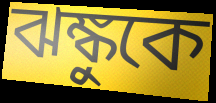
ঝঙ্কুকে